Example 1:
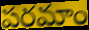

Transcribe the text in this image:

పరమాం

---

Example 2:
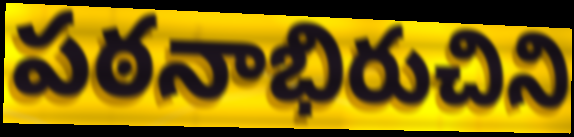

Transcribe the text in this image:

పఠనాభిరుచిని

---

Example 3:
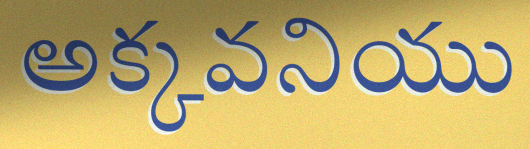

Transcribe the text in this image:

అక్కవనియు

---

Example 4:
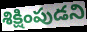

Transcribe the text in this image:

శిక్షింపుడని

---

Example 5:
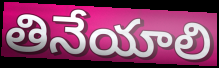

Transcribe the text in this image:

తినేయాలి